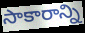
సాకారాన్ని